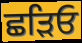
ਛੜਿਓ